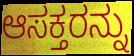
ಆಸಕ್ತರನ್ನು